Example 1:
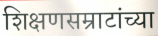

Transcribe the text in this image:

शिक्षणसम्राटांच्या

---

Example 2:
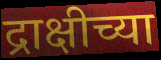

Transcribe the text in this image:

द्राक्षीच्या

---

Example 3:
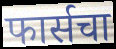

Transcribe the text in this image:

फार्सचा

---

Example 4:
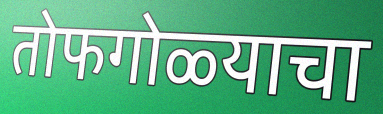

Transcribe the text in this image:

तोफगोळ्याचा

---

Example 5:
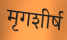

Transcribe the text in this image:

मृगशीर्ष